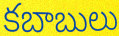
కబాబులు